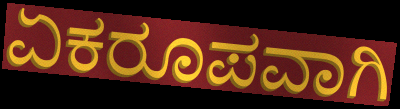
ಏಕರೂಪವಾಗಿ